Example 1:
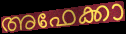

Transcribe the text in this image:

അഫേക്കാ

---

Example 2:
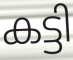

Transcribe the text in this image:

കട്ടി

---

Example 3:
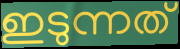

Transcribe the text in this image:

ഇടുന്നത്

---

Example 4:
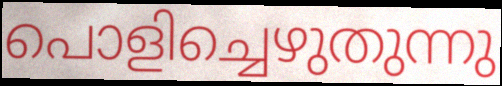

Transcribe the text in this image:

പൊളിച്ചെഴുതുന്നു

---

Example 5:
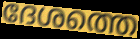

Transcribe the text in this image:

ദേശത്തെ